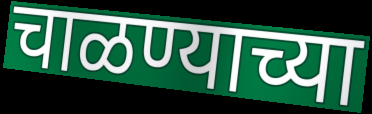
चाळण्याच्या